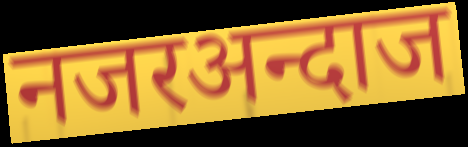
नजरअन्दाज